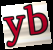
yb